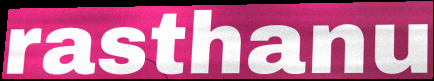
rasthanu